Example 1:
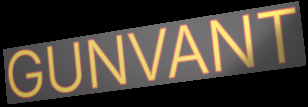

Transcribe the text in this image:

GUNVANT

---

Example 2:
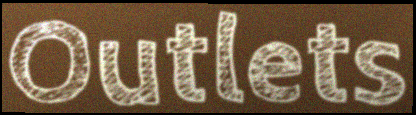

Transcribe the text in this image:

Outlets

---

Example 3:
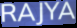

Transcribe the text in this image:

RAJYA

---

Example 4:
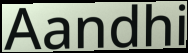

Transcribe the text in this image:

Aandhi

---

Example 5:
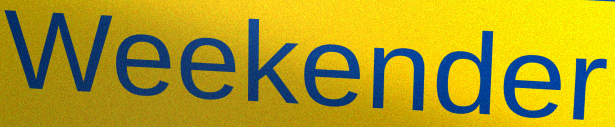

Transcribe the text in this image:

Weekender